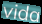
vida